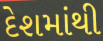
દેશમાંથી